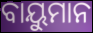
ବାୟୁମାନ